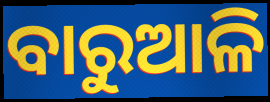
ବାରୁଆଳି